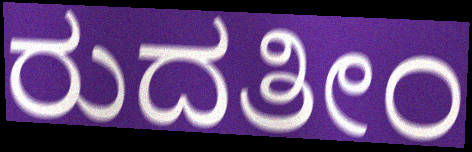
ರುದತೀಂ